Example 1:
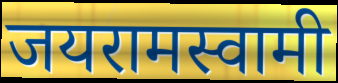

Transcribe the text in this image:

जयरामस्वामी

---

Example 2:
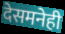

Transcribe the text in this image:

देसमनेही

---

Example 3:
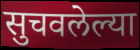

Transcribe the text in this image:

सुचवलेल्या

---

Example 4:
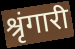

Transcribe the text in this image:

श्रृंगारी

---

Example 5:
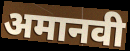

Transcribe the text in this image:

अमानवी